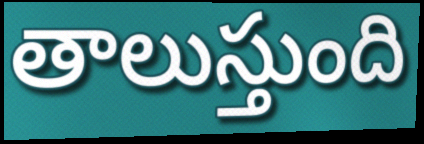
తాలుస్తుంది